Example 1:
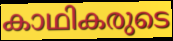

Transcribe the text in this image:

കാഥികരുടെ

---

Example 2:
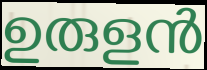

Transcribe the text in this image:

ഉരുളൻ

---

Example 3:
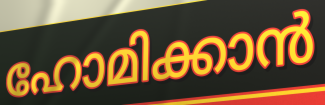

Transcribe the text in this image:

ഹോമിക്കാൻ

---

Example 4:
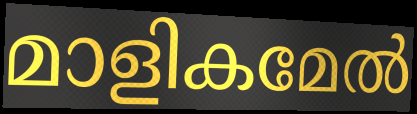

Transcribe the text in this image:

മാളികമേൽ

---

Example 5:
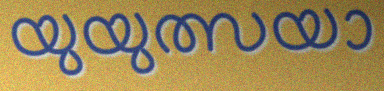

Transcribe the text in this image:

യുയുത്സയാ